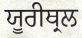
ਯੂਰੀਥ੍ਰਲ